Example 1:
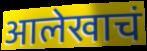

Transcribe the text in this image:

आलेखाचं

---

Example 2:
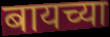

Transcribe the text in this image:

बायच्या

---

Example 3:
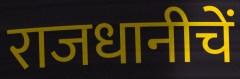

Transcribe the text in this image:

राजधानीचें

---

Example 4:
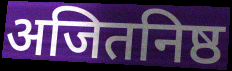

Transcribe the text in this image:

अजितनिष्ठ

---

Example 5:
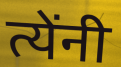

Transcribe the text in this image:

त्येंनी